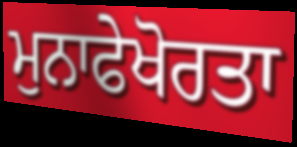
ਮੁਨਾਫੇਖੋਰਤਾ